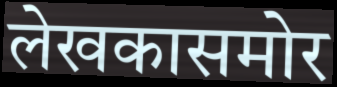
लेखकासमोर